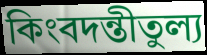
কিংবদন্তীতুল্য